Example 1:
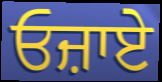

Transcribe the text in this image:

ਓਜ਼ਾਏ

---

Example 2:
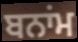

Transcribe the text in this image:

ਬਨਾਂਮ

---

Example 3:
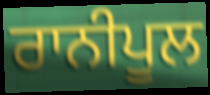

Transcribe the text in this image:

ਰਾਨੀਪੂਲ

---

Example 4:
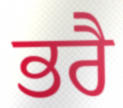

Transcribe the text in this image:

ਭਰੈ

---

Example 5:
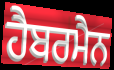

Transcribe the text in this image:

ਹੈਬਰਮੈਨ